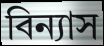
বিন্যাস